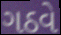
ગઠવે